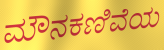
ಮೌನಕಣಿವೆಯ